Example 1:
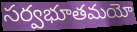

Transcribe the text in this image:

సర్వభూతమయో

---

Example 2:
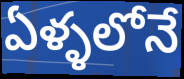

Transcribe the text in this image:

ఏళ్ళలోనే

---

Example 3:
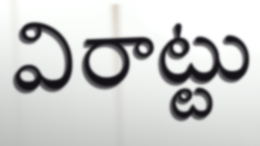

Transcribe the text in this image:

విరాట్టు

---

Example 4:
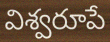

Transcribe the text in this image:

విశ్వరూపే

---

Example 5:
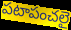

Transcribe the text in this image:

పటాపంచలై